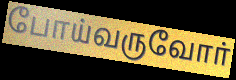
போய்வருவோர்